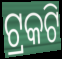
ଟ୍ରକଟି